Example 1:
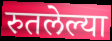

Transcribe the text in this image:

रुतलेल्या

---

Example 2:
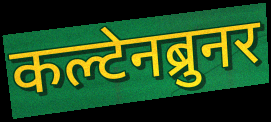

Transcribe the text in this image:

कल्टेनब्रुनर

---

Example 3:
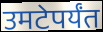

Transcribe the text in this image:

उमटेपर्यंत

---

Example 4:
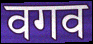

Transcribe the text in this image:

वगव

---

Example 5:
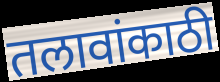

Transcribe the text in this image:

तलावांकाठी